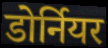
डोर्नियर